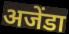
अजेंडा